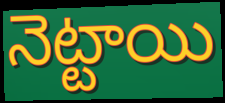
నెట్టాయి